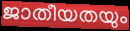
ജാതീയതയും